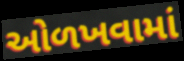
ઓળખવામાં